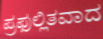
ಪ್ರಫುಲ್ಲಿತವಾದ